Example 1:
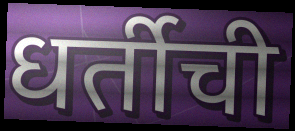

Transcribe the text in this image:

धर्तीची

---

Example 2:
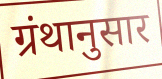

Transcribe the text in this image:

ग्रंथानुसार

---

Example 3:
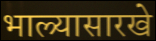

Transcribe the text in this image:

भाल्यासारखे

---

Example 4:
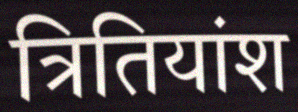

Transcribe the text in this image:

त्रितियांश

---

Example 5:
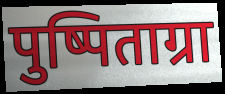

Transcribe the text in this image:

पुष्पिताग्रा